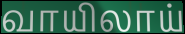
வாயிலாய்